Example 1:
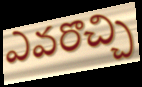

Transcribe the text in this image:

ఎవరొచ్చి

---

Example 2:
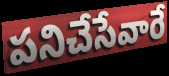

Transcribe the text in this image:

పనిచేసేవారే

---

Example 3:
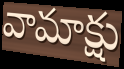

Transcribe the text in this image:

వామాక్షు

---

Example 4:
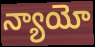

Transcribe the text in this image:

న్యాయో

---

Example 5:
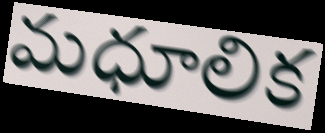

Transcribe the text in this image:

మధూలిక